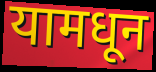
यामधून